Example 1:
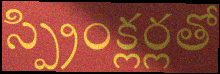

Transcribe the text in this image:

స్ప్రింక్లర్లతో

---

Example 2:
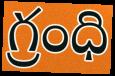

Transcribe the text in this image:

గ్రంధి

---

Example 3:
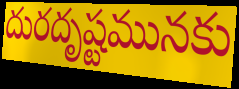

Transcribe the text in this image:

దురదృష్టమునకు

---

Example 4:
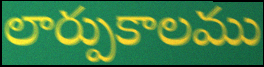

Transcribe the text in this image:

లార్పుకాలము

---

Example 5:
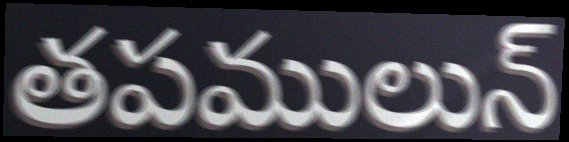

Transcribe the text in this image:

తపములున్